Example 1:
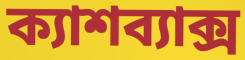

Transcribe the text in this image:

ক্যাশব্যাক্স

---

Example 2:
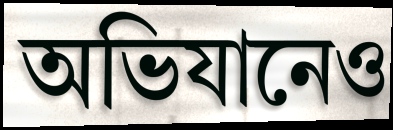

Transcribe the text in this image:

অভিযানেও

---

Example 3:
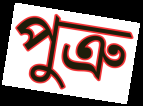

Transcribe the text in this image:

পুত্রু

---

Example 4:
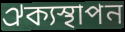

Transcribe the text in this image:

ঐক্যস্থাপন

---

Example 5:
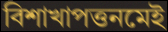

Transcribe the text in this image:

বিশাখাপত্তনমেই